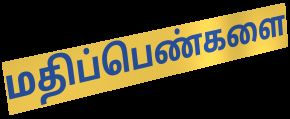
மதிப்பெண்களை